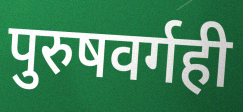
पुरुषवर्गही